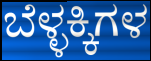
ಬೆಳ್ಳಕ್ಕಿಗಳ